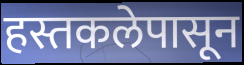
हस्तकलेपासून